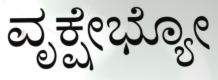
ವೃಕ್ಷೇಭ್ಯೋ